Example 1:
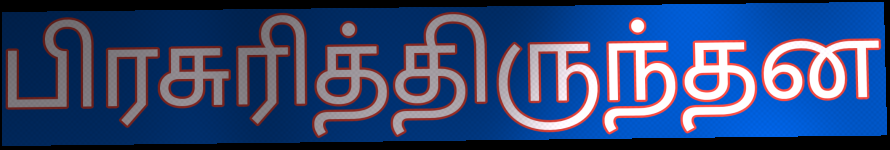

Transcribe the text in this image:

பிரசுரித்திருந்தன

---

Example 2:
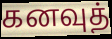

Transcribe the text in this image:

கனவுத்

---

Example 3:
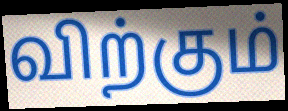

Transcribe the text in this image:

விற்கும்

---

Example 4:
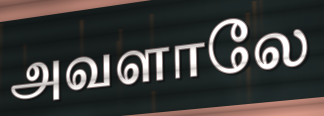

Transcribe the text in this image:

அவளாலே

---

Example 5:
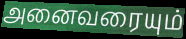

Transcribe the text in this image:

அனைவரையும்